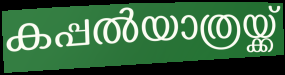
കപ്പൽയാത്രയ്ക്ക്